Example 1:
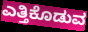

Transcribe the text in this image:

ಎತ್ತಿಕೊಡುವ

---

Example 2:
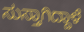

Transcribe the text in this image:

ಸುಸ್ತಾಗಿದ್ದಾಳೆ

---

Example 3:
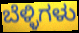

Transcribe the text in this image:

ಬೆಳ್ಳಿಗಳು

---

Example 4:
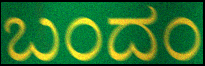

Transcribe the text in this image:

ಬಂದಂ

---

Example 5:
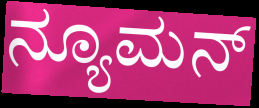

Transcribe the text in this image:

ನ್ಯೂಮನ್